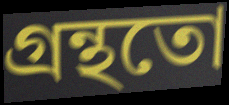
গ্ৰন্থতো